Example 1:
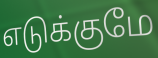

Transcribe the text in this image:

எடுக்குமே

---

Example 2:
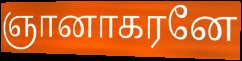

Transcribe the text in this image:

ஞானாகரனே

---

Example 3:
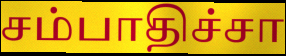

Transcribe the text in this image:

சம்பாதிச்சா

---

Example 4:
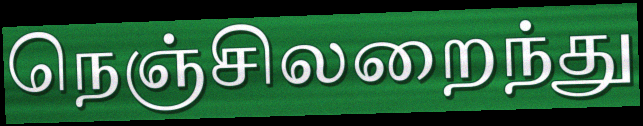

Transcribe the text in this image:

நெஞ்சிலறைந்து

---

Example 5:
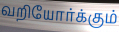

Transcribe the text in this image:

வறியோர்க்கும்